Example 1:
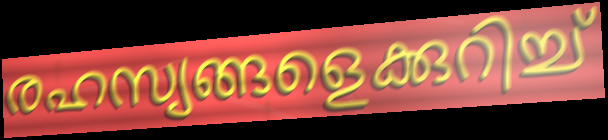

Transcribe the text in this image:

രഹസ്യങ്ങളെക്കുറിച്ച്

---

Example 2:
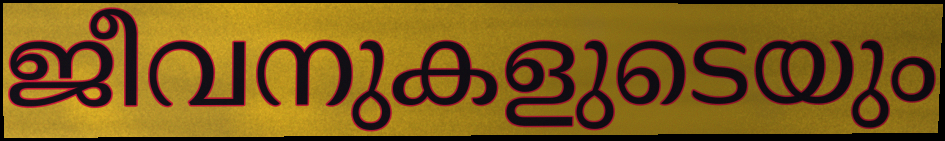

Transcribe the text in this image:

ജീവനുകളുടെയും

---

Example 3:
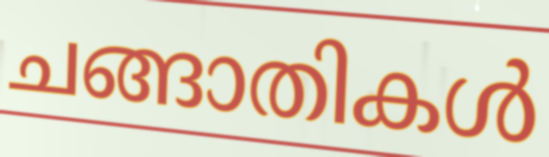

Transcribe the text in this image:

ചങ്ങാതികൾ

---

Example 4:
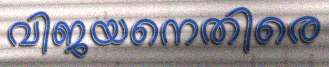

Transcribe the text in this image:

വിജയനെതിരെ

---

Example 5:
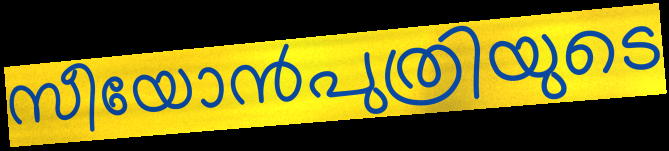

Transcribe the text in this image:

സീയോൻപുത്രിയുടെ